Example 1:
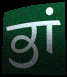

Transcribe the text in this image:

ਭਾਂ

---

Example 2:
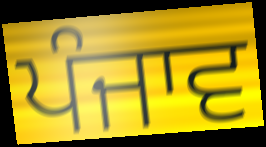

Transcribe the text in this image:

ਪੰਜਾਵ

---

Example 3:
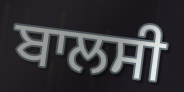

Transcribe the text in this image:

ਬਾਲਸੀ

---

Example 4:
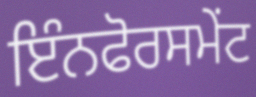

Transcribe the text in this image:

ਇੰਨਫੋਰਸਮੇਂਟ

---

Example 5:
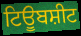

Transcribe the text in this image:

ਟਿਊਬਸ਼ੀਟ